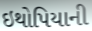
ઇથોપિયાની